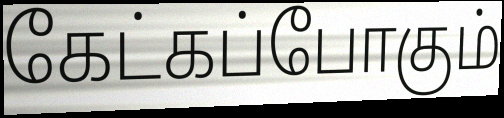
கேட்கப்போகும்